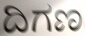
ದಿಗಣ